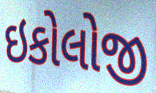
ઇકોલોજી